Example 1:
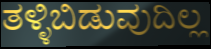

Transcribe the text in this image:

ತಳ್ಳಿಬಿಡುವುದಿಲ್ಲ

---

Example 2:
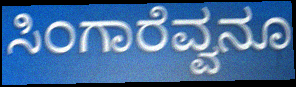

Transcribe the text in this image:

ಸಿಂಗಾರೆವ್ವನೂ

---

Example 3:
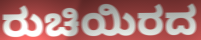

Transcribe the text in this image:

ರುಚಿಯಿರದ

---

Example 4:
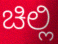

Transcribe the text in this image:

ಚಿಲ್ಲಿ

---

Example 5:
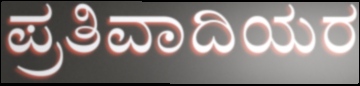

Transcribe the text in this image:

ಪ್ರತಿವಾದಿಯರ